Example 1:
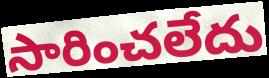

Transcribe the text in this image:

సారించలేదు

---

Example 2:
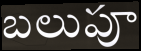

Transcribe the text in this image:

బలుపూ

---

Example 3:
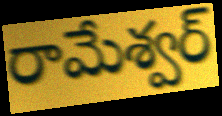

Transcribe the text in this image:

రామేశ్వర్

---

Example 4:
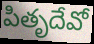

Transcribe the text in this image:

పితృదేవో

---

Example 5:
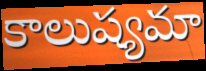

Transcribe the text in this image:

కాలుష్యమా